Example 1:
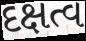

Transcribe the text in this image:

દક્ષત્વ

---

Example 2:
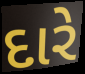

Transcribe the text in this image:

દારે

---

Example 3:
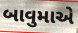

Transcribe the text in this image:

બાવુમાએ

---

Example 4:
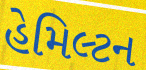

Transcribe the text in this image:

હેમિલ્ટન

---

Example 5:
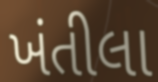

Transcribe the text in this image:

ખંતીલા